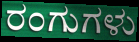
ರಂಗುಗಳು